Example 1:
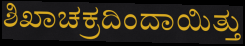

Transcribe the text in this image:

ಶಿಖಾಚಕ್ರದಿಂದಾಯಿತ್ತು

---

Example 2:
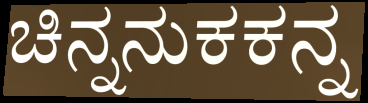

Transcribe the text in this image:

ಚಿನ್ನನುಕಕನ್ನ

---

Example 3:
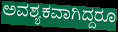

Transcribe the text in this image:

ಅವಶ್ಯಕವಾಗಿದ್ದರೂ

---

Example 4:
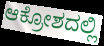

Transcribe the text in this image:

ಆಕ್ರೋಶದಲ್ಲಿ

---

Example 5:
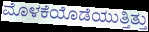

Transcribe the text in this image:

ಮೊಳಕೆಯೊಡೆಯುತ್ತಿತ್ತು